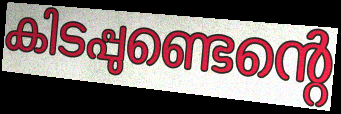
കിടപ്പുണ്ടെന്റെ